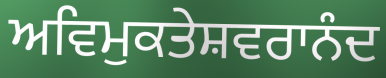
ਅਵਿਮੁਕਤੇਸ਼ਵਰਾਨੰਦ